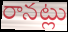
రానట్లు